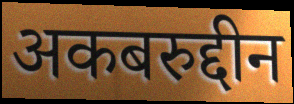
अकबरुद्दीन